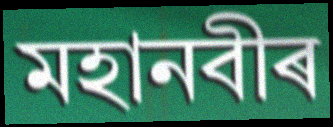
মহানবীৰ